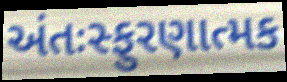
અંતઃસ્ફુરણાત્મક